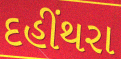
દહીંથરા